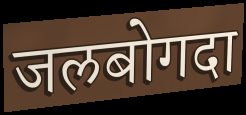
जलबोगदा